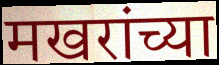
मखरांच्या